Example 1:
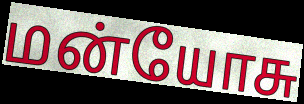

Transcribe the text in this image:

மன்யோசு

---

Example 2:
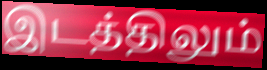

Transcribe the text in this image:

இடத்திலும்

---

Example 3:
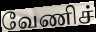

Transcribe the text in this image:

வேணிச்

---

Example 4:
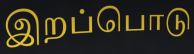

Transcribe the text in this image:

இறப்பொடு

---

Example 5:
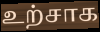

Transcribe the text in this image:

உற்சாக